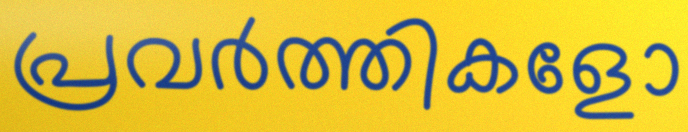
പ്രവർത്തികളോ